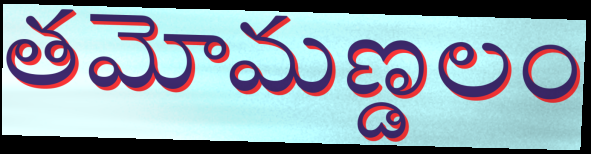
తమోమణ్డలం